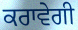
ਕਰਾਵੇਗੀ